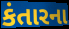
કંતારના